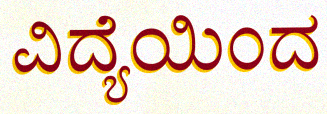
ವಿದ್ಯೆಯಿಂದ